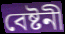
বেষ্টনী